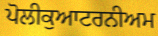
ਪੋਲੀਕੁਆਟਰਨੀਅਮ